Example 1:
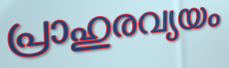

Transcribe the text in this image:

പ്രാഹുരവ്യയം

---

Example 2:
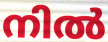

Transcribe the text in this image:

നിൽ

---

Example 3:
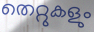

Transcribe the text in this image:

തെറ്റുകളും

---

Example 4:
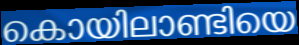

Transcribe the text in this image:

കൊയിലാണ്ടിയെ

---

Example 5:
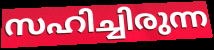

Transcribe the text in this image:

സഹിച്ചിരുന്ന